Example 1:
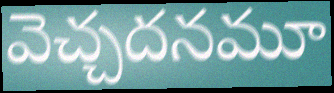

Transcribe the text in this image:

వెచ్చదనమూ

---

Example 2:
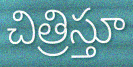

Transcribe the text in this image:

చిత్రిస్తూ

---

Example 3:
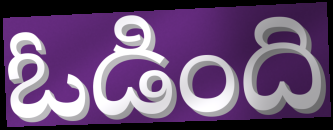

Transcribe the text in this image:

ఓడింది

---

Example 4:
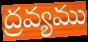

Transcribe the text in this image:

ద్రవ్యము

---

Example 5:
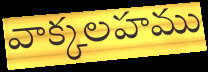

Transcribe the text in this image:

వాక్కలహము